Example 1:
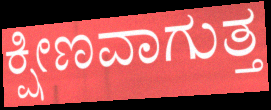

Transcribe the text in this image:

ಕ್ಷೀಣವಾಗುತ್ತ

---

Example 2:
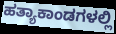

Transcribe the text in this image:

ಹತ್ಯಾಕಾಂಡಗಳಲ್ಲಿ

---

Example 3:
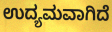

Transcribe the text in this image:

ಉದ್ಯಮವಾಗಿದೆ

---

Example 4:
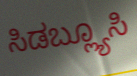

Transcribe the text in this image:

ಸಿಡಬ್ಲ್ಯೂಸಿ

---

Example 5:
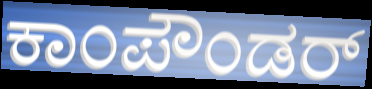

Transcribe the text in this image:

ಕಾಂಪೌಂಡರ್